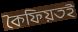
কৈফিয়তই